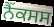
ਨੈੱਕਸਸ